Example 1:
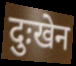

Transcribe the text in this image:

दुःखेन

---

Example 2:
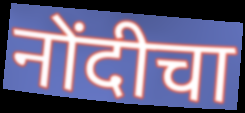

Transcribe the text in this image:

नोंदीचा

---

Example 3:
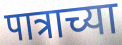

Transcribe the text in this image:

पात्राच्या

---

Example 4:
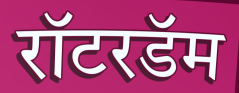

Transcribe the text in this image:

रॉटरडॅम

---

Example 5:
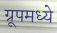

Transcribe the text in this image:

ग्रूपमध्ये